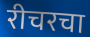
रीचरचा